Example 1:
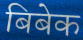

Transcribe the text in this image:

बिबेक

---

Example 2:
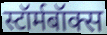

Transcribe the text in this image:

स्टॉर्मबॉक्स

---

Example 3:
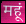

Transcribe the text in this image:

महूं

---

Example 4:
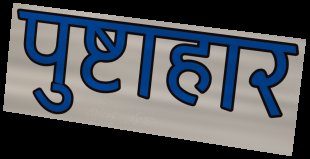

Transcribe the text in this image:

पुष्टाहार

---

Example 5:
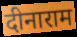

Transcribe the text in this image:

दीनाराम